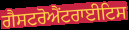
ਗੈਸਟਰੋਐਂਟਰਾਈਟਿਸ